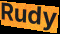
Rudy